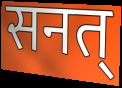
सनत्